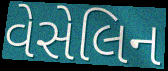
વેસેલિન